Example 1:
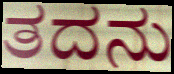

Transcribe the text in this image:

ತದನು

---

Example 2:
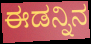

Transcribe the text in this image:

ಈಡನ್ನಿನ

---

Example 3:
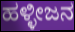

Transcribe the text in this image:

ಹಳ್ಳೀಜನ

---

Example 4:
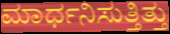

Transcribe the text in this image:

ಮಾರ್ಧನಿಸುತ್ತಿತ್ತು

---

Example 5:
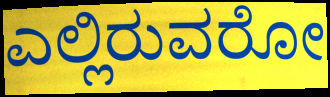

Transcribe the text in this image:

ಎಲ್ಲಿರುವರೋ